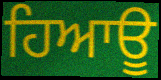
ਹਿਆਊ